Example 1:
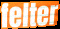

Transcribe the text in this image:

felter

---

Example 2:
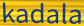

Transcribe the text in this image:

kadala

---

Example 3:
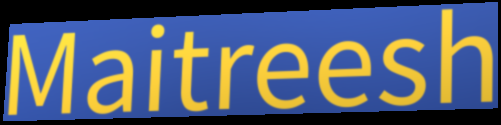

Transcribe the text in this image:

Maitreesh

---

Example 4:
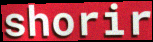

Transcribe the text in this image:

shorir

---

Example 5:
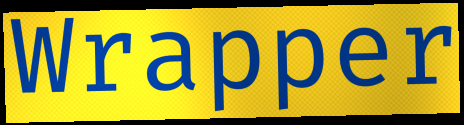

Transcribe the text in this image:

Wrapper